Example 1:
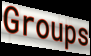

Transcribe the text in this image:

Groups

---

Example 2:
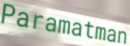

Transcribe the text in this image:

Paramatman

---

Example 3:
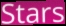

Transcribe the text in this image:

Stars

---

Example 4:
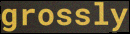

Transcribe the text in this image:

grossly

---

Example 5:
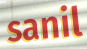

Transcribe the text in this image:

sanil